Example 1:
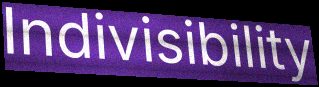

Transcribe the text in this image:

Indivisibility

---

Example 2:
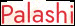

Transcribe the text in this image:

Palashi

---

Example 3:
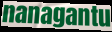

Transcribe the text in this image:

nanagantu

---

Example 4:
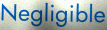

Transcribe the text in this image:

Negligible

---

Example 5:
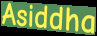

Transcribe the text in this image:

Asiddha